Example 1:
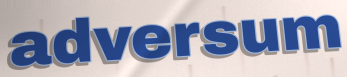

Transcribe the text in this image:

adversum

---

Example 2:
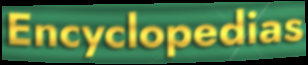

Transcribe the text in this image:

Encyclopedias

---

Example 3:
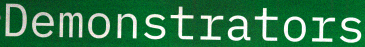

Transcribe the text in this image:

Demonstrators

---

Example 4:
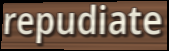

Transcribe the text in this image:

repudiate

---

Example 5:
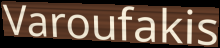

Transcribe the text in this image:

Varoufakis